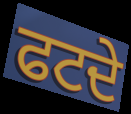
ਫਟਦੇ